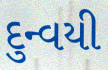
દુન્વયી